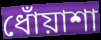
ধোঁয়াশা